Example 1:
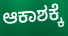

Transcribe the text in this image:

ಆಕಾಶಕ್ಕೆ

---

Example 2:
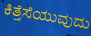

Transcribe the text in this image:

ಕಿತ್ತೆಸೆಯುವುದು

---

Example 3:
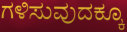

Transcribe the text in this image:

ಗಳಿಸುವುದಕ್ಕೂ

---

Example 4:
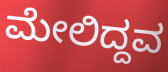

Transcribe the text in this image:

ಮೇಲಿದ್ದವ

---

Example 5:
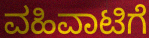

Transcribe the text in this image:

ವಹಿವಾಟಿಗೆ